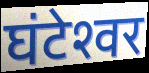
घंटेश्वर